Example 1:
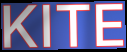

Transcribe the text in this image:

KITE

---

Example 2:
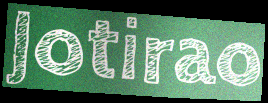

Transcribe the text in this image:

Jotirao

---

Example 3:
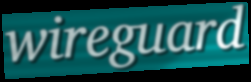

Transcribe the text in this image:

wireguard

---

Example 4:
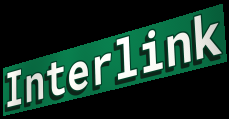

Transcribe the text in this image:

Interlink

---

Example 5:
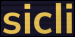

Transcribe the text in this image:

sicli